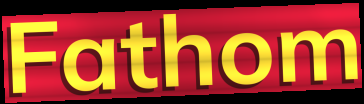
Fathom